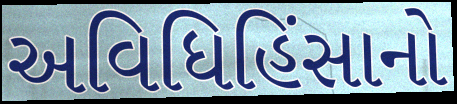
અવિધિહિંસાનો